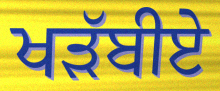
ਖੜੱਬੀਏ